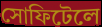
সোফিটেলে